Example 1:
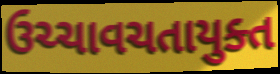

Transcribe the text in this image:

ઉચ્ચાવચતાયુક્ત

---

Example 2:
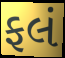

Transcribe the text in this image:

ફલં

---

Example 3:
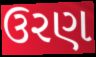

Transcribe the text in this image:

ઉરણ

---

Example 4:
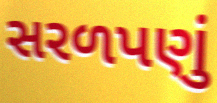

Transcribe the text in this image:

સરળપણું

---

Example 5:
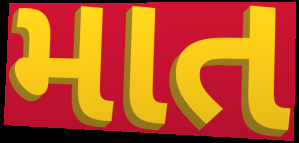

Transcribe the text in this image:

માત